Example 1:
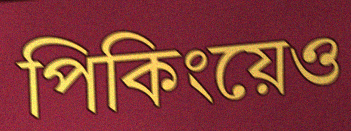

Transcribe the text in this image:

পিকিংয়েও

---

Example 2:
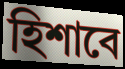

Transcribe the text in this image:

হিশাবে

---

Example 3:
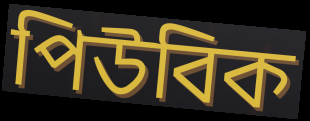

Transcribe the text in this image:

পিউবিক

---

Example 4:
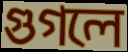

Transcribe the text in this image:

গুগলে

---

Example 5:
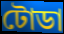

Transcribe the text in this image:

টোডা